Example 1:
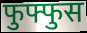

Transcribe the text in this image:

फुफ्फुस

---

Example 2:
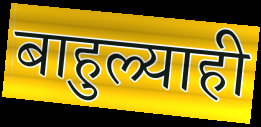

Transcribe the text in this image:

बाहुल्याही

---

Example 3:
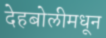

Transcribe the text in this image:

देहबोलीमधून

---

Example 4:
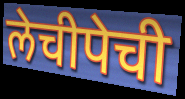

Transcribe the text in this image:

लेचीपेची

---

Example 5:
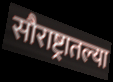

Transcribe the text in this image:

सौराष्ट्रातल्या